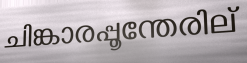
ചിങ്കാരപ്പൂന്തേരില്